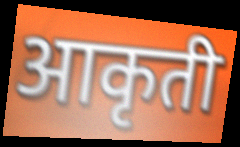
आकृती